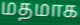
மதமாக